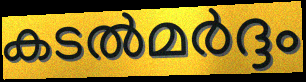
കടൽമർദ്ദം